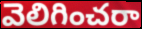
వెలిగించరా